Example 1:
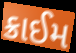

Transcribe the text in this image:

ક્રાઈમ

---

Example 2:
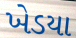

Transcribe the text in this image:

ખેડયા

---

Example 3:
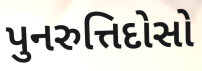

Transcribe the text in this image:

પુનરુત્તિદોસો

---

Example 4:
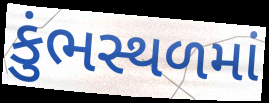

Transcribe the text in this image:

કુંભસ્થળમાં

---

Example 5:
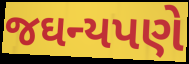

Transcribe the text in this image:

જઘન્યપણે